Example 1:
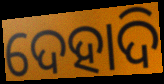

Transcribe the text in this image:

ଦେହାଦି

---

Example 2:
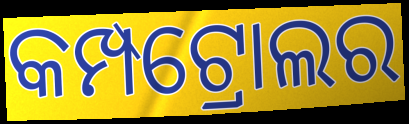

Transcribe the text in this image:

କମ୍ପଟ୍ରୋଲର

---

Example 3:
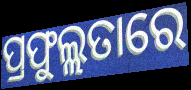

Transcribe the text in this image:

ପ୍ରଫୁଲ୍ଲତାରେ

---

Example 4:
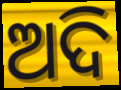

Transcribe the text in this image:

ଅଦି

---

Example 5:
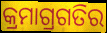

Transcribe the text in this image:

କ୍ରମାଗ୍ରଗତିର